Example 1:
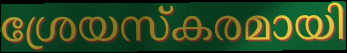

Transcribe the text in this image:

ശ്രേയസ്കരമായി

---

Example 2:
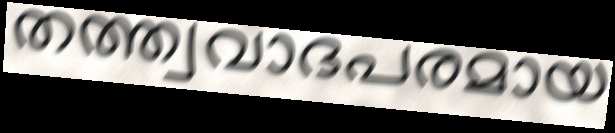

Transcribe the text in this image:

തത്ത്വവാദപരമായ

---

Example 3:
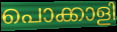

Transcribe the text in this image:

പൊക്കാളി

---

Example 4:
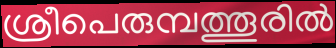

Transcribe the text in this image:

ശ്രീപെരുമ്പത്തൂരിൽ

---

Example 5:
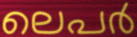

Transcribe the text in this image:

ലെപർ